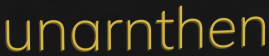
unarnthen